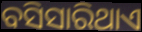
ବସିସାରିଥାଏ